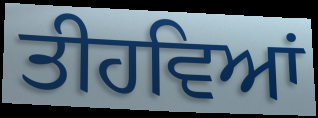
ਤੀਹਵਿਆਂ